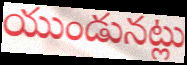
యుండునట్లు